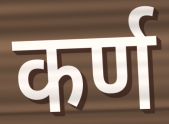
कर्ण